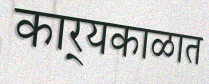
कार्यकाळात